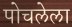
पोचलेला